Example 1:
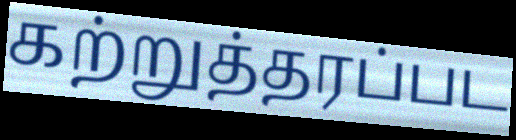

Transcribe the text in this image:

கற்றுத்தரப்பட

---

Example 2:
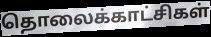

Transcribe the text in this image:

தொலைக்காட்சிகள்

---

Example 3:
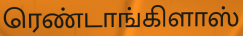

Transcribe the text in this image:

ரெண்டாங்கிளாஸ்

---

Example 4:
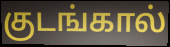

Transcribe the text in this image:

குடங்கால்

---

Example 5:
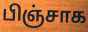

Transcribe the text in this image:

பிஞ்சாக